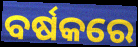
ବର୍ଷକରେ